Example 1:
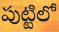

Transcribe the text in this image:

పుట్టిలో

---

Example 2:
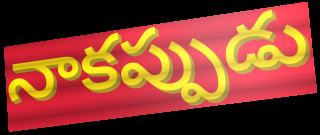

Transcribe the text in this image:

నాకప్పుడు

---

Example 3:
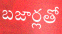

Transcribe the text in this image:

బజార్లతో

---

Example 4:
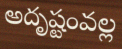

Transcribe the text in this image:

అదృష్టంవల్ల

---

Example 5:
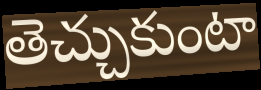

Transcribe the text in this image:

తెచ్చుకుంటా